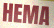
HEMA